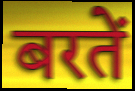
बरतें